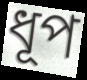
ধূপ